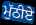
ਮੁੱਠੀਏ